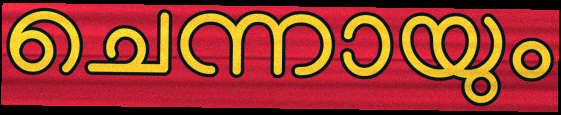
ചെന്നായും